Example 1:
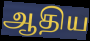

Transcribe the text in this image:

ஆதிய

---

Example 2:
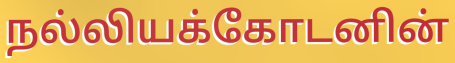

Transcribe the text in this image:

நல்லியக்கோடனின்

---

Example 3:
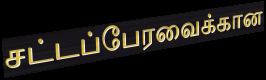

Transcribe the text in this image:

சட்டப்பேரவைக்கான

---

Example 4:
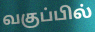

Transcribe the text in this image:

வகுப்பில்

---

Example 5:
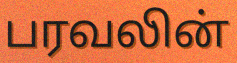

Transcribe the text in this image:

பரவலின்